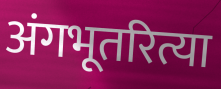
अंगभूतरित्या